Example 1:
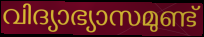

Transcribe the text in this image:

വിദ്യാഭ്യാസമുണ്ട്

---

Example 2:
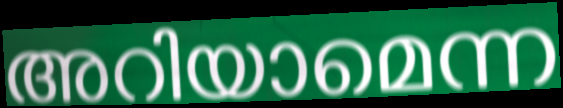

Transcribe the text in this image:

അറിയാമെന്ന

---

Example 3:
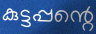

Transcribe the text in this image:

കുട്ടപ്പന്റെ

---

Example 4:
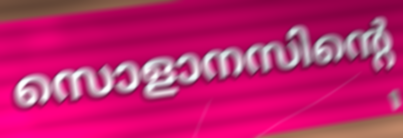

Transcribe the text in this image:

സൊളാനസിന്റെ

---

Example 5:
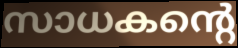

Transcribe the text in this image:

സാധകന്റെ